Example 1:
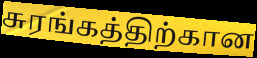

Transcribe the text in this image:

சுரங்கத்திற்கான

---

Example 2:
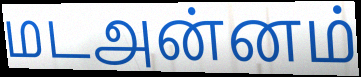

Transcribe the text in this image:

மடஅன்னம்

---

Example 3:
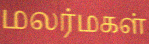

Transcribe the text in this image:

மலர்மகள்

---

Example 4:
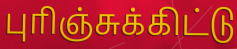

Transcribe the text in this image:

புரிஞ்சுக்கிட்டு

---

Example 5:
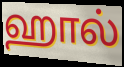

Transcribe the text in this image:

ஹால்